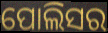
ପୋଲିସର